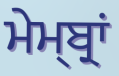
ਮੇਮ੍ਬ੍ਰਾਂ